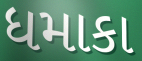
ધમાકા